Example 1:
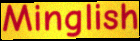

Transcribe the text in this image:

Minglish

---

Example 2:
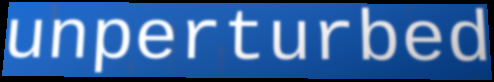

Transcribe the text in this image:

unperturbed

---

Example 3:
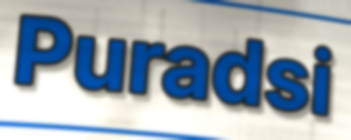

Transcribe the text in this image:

Puradsi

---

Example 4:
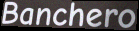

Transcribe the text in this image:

Banchero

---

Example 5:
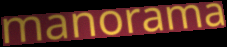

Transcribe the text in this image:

manorama